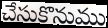
చేసుకొనుము